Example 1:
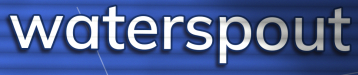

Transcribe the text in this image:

waterspout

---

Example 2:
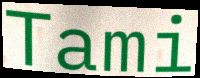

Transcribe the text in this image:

Tami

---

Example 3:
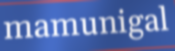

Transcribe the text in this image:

mamunigal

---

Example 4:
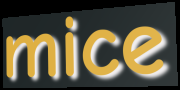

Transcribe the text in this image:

mice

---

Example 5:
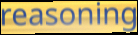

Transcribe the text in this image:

reasoning